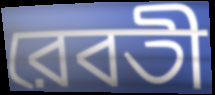
রেবতী